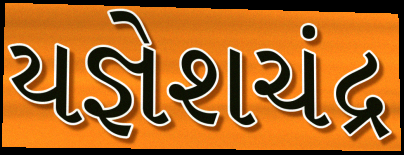
યજ્ઞેશચંદ્ર